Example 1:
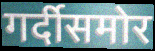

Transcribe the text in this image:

गर्दीसमोर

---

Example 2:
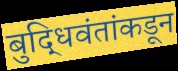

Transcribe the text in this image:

बुद्धिवंतांकडून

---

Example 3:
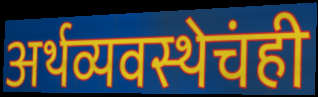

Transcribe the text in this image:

अर्थव्यवस्थेचंही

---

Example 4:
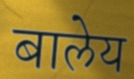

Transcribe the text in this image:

बालेय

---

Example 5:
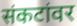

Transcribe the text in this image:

संकटांवर